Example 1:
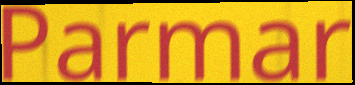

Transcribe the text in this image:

Parmar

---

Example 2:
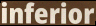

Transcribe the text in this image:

inferior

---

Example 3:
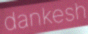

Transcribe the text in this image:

dankesh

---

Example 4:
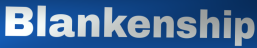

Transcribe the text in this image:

Blankenship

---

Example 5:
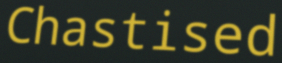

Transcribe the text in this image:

Chastised